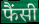
फैंसी